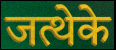
जत्थेके